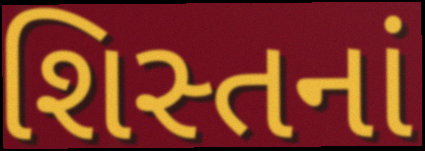
શિસ્તનાં